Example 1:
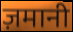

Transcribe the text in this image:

ज़मानी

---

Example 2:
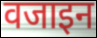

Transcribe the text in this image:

वजाइन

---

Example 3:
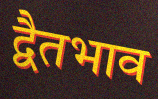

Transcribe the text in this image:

द्वैतभाव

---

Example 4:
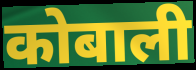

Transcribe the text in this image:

कोबाली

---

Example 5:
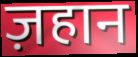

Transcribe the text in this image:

ज़हान